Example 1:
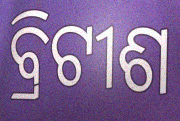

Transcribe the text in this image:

ବ୍ରିଟୀଶ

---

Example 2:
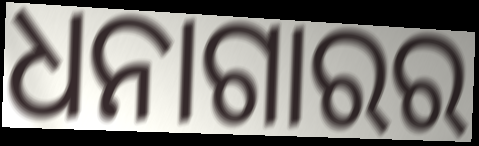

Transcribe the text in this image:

ଧନାଗାରର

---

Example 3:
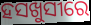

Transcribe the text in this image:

ହସଖୁସୀରେ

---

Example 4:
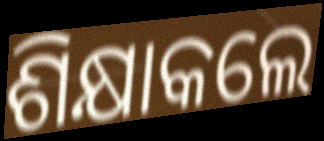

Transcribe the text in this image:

ଶିକ୍ଷାକଲେ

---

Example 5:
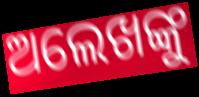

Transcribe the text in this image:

ଅଲେଖଙ୍କୁ